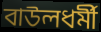
বাউলধর্মী